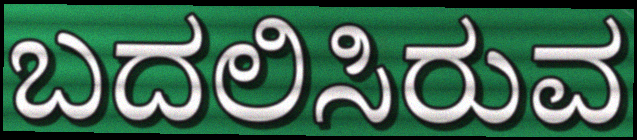
ಬದಲಿಸಿರುವ